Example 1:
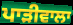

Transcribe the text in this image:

ਪਾੜੀਵਾਲਾ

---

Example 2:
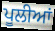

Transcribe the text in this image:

ਪੂਲੀਆਂ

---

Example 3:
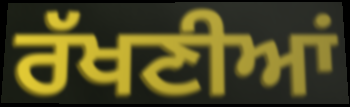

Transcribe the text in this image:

ਰੱਖਣੀਆਂ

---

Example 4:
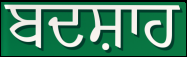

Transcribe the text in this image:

ਬਦਸ਼ਾਹ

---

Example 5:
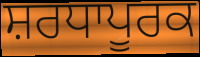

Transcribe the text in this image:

ਸ਼ਰਧਾਪੂਰਕ